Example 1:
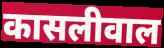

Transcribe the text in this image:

कासलीवाल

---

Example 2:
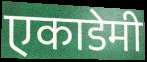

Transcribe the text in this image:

एकाडेमी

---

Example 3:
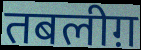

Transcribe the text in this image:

तबलीग़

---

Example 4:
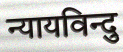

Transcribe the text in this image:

न्यायविन्दु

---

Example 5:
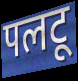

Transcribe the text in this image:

पलटू